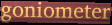
goniometer